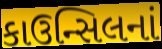
કાઉન્સિલનાં